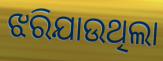
ଝରିଯାଉଥିଲା